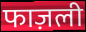
फाज़ली